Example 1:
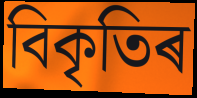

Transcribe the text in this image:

বিকৃতিৰ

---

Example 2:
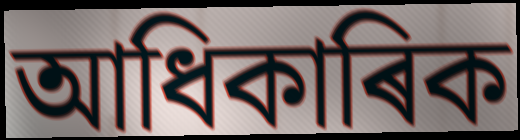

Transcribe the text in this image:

আধিকাৰিক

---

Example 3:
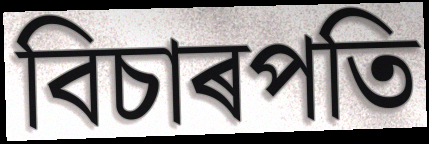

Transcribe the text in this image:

বিচাৰপতি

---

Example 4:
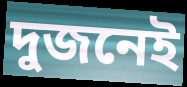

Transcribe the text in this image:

দুজনেই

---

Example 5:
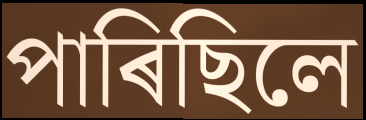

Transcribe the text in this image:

পাৰিছিলে